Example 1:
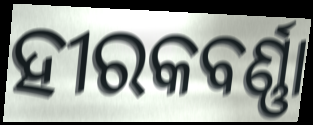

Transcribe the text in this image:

ହୀରକବର୍ଣ୍ଣା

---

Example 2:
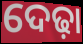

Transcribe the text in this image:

ଦେଢ଼ା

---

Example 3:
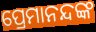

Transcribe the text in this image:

ପ୍ରେମାନନ୍ଦଙ୍କ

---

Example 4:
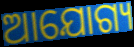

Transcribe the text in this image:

ଆଯୋଗ୍ୟ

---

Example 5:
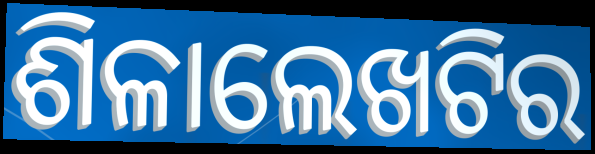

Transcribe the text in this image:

ଶିଳାଲେଖଟିର